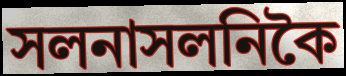
সলনাসলনিকৈ